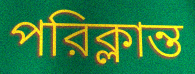
পরিক্লান্ত